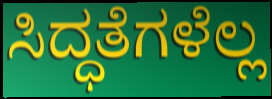
ಸಿದ್ಧತೆಗಳೆಲ್ಲ